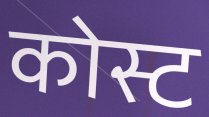
कोस्ट